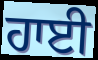
ਹਾਈ